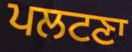
ਪਲਟਣਾ